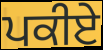
ਪਕੀਏ